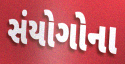
સંયોગોના